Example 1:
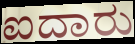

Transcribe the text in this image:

ಐದಾರು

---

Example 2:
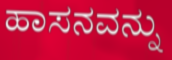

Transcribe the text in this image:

ಹಾಸನವನ್ನು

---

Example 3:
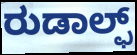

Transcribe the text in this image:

ರುಡಾಲ್ಫ್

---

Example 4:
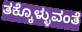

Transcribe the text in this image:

ತಕ್ಕೊಳ್ಳುವಂತೆ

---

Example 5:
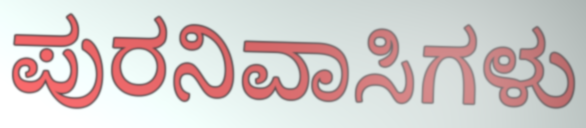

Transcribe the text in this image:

ಪುರನಿವಾಸಿಗಳು